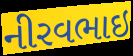
નીરવભાઇ